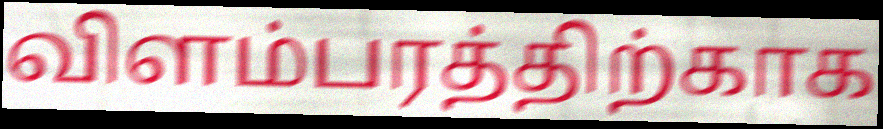
விளம்பரத்திற்காக